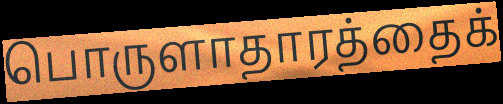
பொருளாதாரத்தைக்